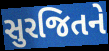
સુરજિતને